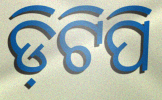
ଡ଼ିଟିପି